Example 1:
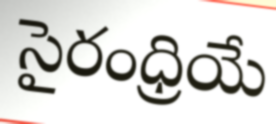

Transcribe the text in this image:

సైరంధ్రియే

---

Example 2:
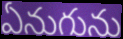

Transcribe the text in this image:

ఏనుగును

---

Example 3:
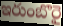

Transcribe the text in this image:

ఇరుంబొరై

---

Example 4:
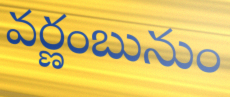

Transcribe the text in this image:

వర్ణంబునుం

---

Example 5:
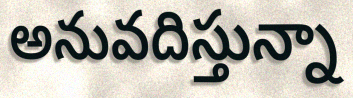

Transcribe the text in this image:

అనువదిస్తున్నా